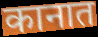
कानात